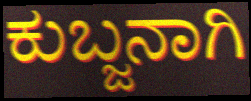
ಕುಬ್ಜನಾಗಿ